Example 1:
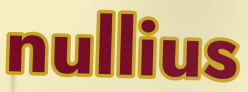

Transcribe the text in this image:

nullius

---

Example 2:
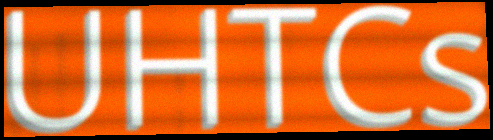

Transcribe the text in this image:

UHTCs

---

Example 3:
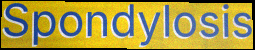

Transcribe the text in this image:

Spondylosis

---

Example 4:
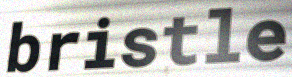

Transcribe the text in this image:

bristle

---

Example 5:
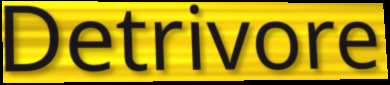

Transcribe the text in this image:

Detrivore